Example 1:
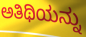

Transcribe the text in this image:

ಅತಿಥಿಯನ್ನು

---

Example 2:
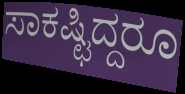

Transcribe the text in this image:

ಸಾಕಷ್ಟಿದ್ದರೂ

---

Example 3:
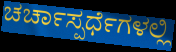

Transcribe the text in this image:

ಚರ್ಚಾಸ್ಪರ್ಧೆಗಳಲ್ಲಿ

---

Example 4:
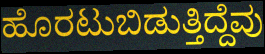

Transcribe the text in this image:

ಹೊರಟುಬಿಡುತ್ತಿದ್ದೆವು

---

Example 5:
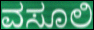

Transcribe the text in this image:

ವಸೂಲಿ